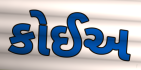
કોઈઅ